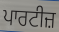
ਪਾਰਟੀਜ਼